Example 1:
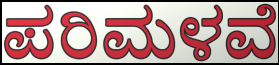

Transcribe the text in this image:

ಪರಿಮಳವೆ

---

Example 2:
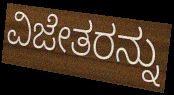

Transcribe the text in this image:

ವಿಜೇತರನ್ನು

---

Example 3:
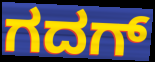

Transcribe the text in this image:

ಗದಗ್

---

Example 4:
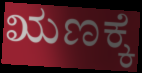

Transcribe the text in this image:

ಋಣಕ್ಕೆ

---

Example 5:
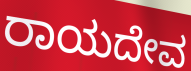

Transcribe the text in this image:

ರಾಯದೇವ